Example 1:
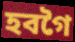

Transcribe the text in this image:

হবগৈ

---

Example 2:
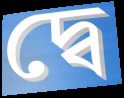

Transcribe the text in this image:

দ্বে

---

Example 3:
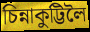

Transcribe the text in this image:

চিন্নাকুট্টিলৈ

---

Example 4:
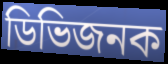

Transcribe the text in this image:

ডিভিজনক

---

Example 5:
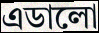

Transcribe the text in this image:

এডালো